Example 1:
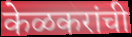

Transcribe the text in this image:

केळकरांची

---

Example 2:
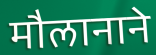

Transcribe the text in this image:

मौलानाने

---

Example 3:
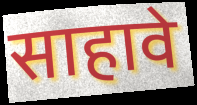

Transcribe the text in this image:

साहावे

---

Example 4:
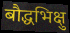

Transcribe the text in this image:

बौद्धभिक्षु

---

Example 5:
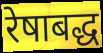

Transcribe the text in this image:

रेषाबद्ध